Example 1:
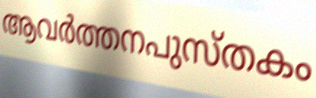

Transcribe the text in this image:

ആവർത്തനപുസ്തകം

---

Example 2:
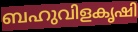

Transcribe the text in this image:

ബഹുവിളകൃഷി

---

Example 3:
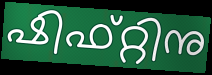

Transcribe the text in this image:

ഷിഫ്റ്റിനു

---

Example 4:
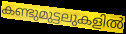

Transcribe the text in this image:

കണ്ടുമുട്ടലുകളിൽ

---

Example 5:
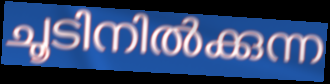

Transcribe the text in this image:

ചൂടിനിൽക്കുന്ന